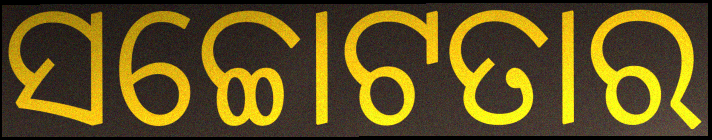
ସଚ୍ଚୋଟତାର